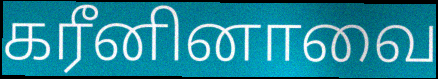
கரீனினாவை